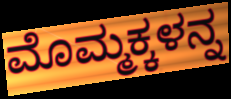
ಮೊಮ್ಮಕ್ಕಳನ್ನ